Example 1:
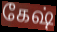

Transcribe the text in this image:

கேஷ்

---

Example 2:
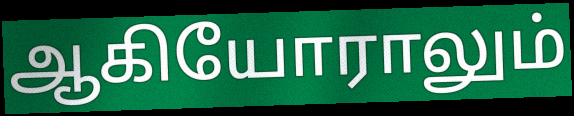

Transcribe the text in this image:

ஆகியோராலும்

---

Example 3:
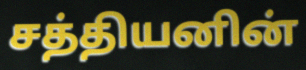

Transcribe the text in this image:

சத்தியனின்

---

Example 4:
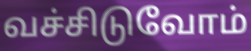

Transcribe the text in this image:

வச்சிடுவோம்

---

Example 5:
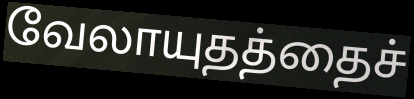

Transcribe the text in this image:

வேலாயுதத்தைச்